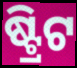
ଷ୍ଟ୍ରିଟ